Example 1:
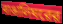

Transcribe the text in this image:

বাঙালিঘরের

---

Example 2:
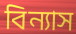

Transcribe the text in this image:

বিন্যাস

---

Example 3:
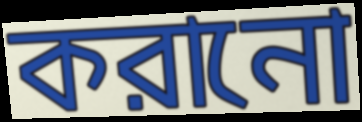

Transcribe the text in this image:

করানো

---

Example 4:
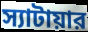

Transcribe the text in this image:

স্যাটায়ার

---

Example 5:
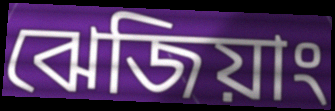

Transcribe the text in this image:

ঝেজিয়াং